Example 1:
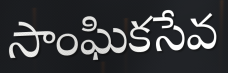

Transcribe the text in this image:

సాంఘికసేవ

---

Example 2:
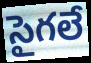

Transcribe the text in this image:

సైగలే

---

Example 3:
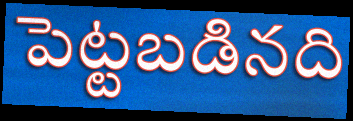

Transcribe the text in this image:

పెట్టబడినది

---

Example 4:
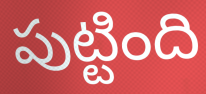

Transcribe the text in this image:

పుట్టింది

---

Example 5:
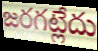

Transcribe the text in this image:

జరగట్లేదు